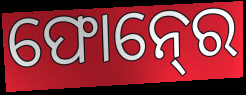
ଫୋନ୍‍ରେ